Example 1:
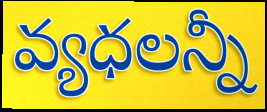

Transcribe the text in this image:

వ్యధలన్నీ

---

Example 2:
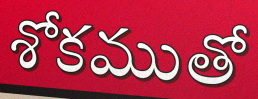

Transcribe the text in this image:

శోకముతో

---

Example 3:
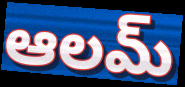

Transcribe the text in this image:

ఆలమ్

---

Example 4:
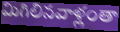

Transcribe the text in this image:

మిగిలినవాళ్లంతా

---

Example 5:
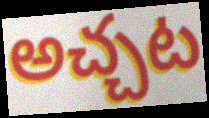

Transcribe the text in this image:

అచ్చట